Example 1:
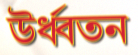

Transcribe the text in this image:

উর্ধ্বতন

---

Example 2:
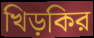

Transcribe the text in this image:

খিড়কির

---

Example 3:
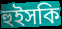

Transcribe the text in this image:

হুইসকি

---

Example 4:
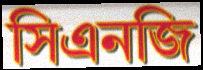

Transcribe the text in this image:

সিএনজি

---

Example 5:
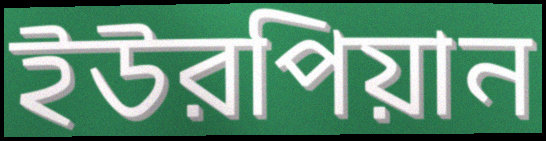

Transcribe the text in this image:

ইউরপিয়ান